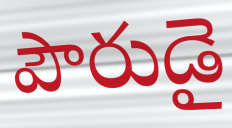
పౌరుడై